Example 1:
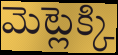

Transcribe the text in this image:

మెట్లెక్కి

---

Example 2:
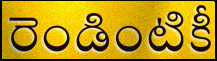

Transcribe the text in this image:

రెండింటికీ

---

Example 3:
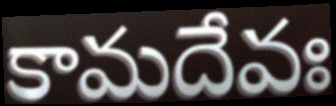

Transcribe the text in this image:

కామదేవః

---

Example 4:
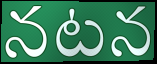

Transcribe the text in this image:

నటన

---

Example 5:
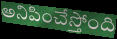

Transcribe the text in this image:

అనిపించేస్తోంది